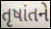
તૃષાંતને